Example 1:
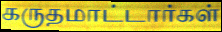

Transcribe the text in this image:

கருதமாட்டார்கள்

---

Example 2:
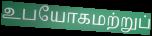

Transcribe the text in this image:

உபயோகமற்றுப்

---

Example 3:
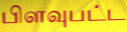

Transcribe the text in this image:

பிளவுபட்ட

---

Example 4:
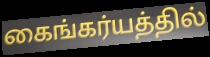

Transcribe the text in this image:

கைங்கர்யத்தில்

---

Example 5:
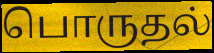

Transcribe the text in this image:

பொருதல்